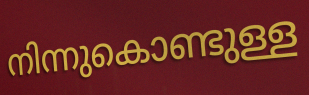
നിന്നുകൊണ്ടുള്ള